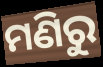
ମଣିରୁ